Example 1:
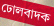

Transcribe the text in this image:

ঢোলবাদক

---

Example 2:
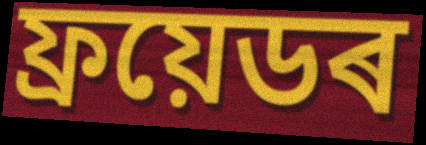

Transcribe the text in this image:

ফ্ৰয়েডৰ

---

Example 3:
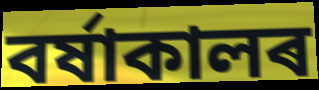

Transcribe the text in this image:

বৰ্ষাকালৰ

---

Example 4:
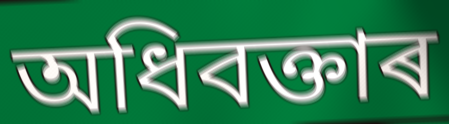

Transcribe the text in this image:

অধিবক্তাৰ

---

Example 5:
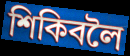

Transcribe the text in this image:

শিকিবলৈ